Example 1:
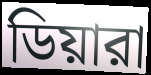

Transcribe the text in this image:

ডিয়ারা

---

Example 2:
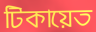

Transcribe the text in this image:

টিকায়েত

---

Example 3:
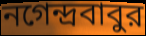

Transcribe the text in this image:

নগেন্দ্রবাবুর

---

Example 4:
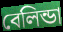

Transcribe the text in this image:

বেলিন্ডা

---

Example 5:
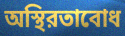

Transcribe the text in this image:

অস্থিরতাবোধ